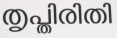
തൃപ്തിരിതി